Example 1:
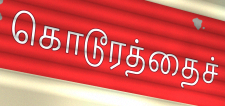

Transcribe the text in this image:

கொடூரத்தைச்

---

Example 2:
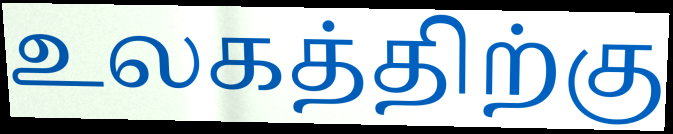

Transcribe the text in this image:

உலகத்திற்கு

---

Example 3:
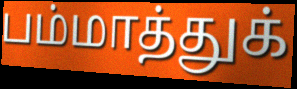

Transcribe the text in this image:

பம்மாத்துக்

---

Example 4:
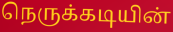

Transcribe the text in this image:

நெருக்கடியின்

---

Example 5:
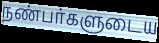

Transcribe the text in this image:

நண்பர்களுடைய